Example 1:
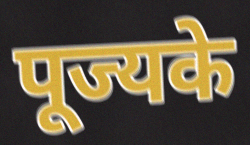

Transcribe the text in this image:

पूज्यके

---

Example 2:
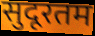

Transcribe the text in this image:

सुदूरतम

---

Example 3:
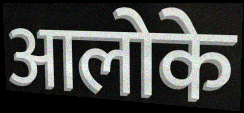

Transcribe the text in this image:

आलोके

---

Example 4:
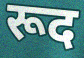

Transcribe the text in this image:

रूद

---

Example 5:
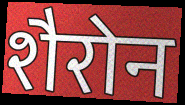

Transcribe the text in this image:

शैरोन